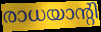
രാധയാന്റി